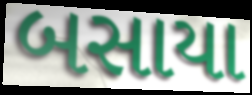
બસાયા